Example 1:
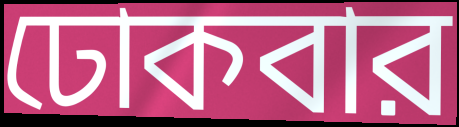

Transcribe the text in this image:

ঢোকবার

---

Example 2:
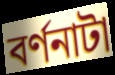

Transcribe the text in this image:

বর্ণনাটা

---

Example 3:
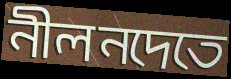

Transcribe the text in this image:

নীলনদেতে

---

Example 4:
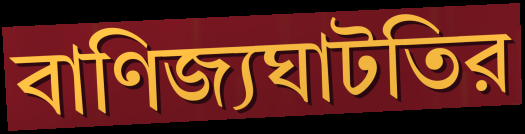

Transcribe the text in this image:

বাণিজ্যঘাটতির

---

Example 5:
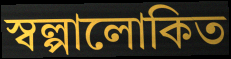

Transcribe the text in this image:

স্বল্পালোকিত